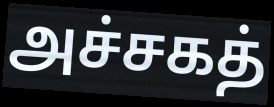
அச்சகத்